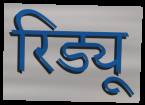
रिड्यू